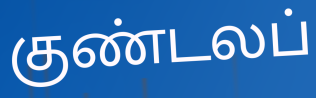
குண்டலப்